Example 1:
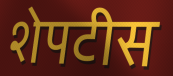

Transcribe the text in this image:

शेपटीस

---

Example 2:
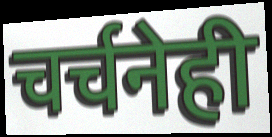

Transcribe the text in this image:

चर्चनेही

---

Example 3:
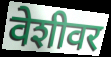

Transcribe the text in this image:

वेशीवर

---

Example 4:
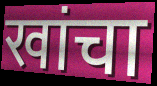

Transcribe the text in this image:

खांचा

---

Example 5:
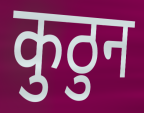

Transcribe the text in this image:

कुठुन